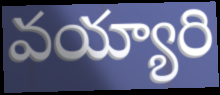
వయ్యారి